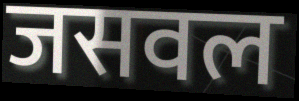
जसवल